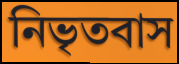
নিভৃতবাস